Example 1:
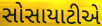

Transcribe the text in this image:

સોસાયાટીએ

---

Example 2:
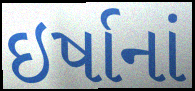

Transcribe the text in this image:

ઇર્ષાનાં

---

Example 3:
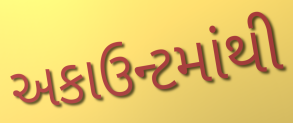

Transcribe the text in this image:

અકાઉન્ટમાંથી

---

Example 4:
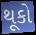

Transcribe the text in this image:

થૂકો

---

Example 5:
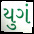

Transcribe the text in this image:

યુગં